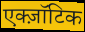
एक्ज़ॉटिक